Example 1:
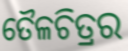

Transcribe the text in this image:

ତୈଳଚିତ୍ରର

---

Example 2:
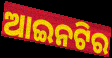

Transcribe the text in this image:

ଆଇନଟିର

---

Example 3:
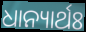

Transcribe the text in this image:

ଧାନ୍ୟାର୍ଥଃ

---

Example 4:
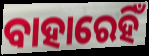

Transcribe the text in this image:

ବାହାରେହିଁ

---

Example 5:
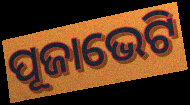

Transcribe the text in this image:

ପୂଜାଭେଟି